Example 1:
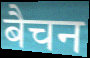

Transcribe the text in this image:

बैचन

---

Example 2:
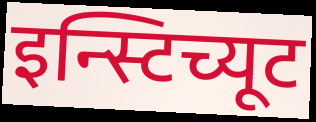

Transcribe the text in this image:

इन्स्टिच्यूट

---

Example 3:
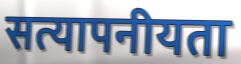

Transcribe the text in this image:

सत्यापनीयता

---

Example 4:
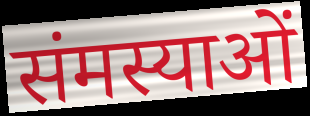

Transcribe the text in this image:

संमस्याओं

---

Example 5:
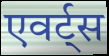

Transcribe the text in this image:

एवर्ट्स